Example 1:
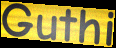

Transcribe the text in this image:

Guthi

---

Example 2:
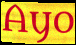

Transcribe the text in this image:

Ayo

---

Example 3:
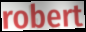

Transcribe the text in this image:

robert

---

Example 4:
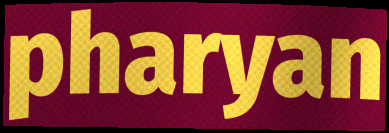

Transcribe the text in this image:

pharyan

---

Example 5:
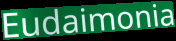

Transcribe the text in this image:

Eudaimonia